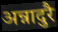
अन्नादुरै